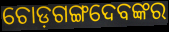
ଚୋଡ଼ଗଙ୍ଗଦେବଙ୍କର